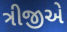
ત્રીજીએ